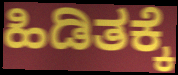
ಹಿಡಿತಕ್ಕೆ